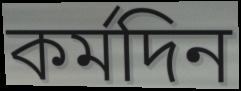
কৰ্মদিন